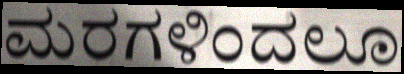
ಮರಗಳಿಂದಲೂ